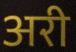
अरी